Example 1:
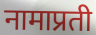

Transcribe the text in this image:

नामाप्रती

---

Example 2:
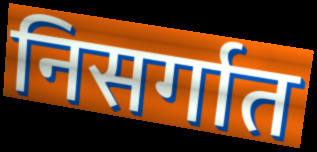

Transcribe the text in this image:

निसर्गात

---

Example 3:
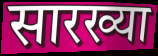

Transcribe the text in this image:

सारख्या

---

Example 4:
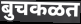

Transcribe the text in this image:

बुचकळत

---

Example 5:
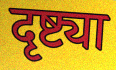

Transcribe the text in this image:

दृष्ट्या